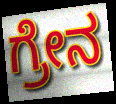
ಗ್ರೇನ